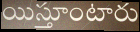
యిస్తూంటారు